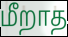
மீறாத